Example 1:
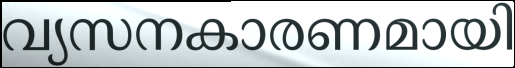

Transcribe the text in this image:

വ്യസനകാരണമായി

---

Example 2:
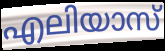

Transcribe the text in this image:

എലിയാസ്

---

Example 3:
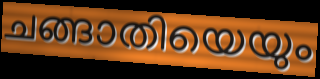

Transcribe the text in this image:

ചങ്ങാതിയെയും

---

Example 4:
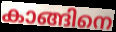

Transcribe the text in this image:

കാങ്ങിനെ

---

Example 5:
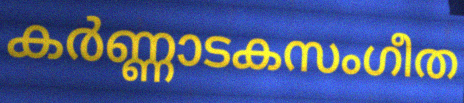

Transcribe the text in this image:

കർണ്ണാടകസംഗീത